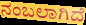
ನಂಬಲಾಗಿದೆ